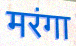
मरंगा